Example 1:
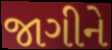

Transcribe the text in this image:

જાગીને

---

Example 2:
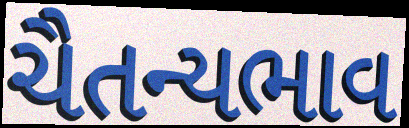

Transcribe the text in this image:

ચૈતન્યભાવ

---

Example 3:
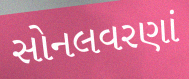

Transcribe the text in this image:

સોનલવરણાં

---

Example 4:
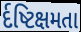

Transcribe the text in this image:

ર્દષ્ટિક્ષમતા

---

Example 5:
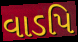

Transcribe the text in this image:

વાઽપિ